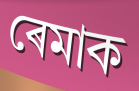
ৰেমাক